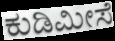
ಕುಡಿಮೀಸೆ